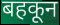
बहकून